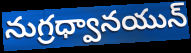
నుగ్రధ్వానయున్